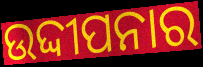
ଉଦ୍ଦୀପନାର